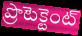
ప్రొటెక్టెంట్